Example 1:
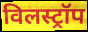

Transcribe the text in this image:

विलस्ट्रॉप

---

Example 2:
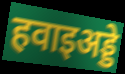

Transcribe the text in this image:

हवाइअड्डे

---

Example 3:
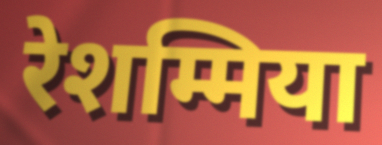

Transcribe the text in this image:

रेशम्मिया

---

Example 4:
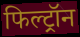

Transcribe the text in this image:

फिल्ट्रॉन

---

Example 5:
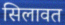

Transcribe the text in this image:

सिलावत